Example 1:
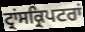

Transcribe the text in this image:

ਟ੍ਰਾਂਸਕ੍ਰਿਪਟਰਾਂ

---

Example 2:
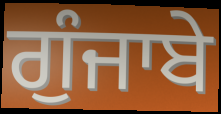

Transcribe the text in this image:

ਗੁੰਜਾਬੇ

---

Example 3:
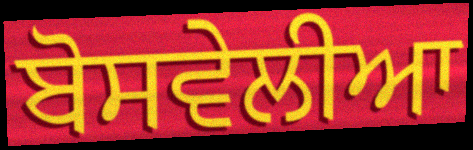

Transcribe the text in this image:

ਬੋਸਵੇਲੀਆ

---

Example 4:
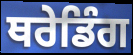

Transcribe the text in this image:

ਥਰੇਡਿੰਗ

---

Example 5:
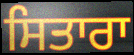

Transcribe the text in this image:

ਸਿਤਾਰਾ